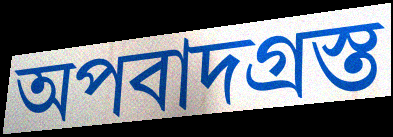
অপবাদগ্রস্ত